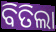
ବିତିଲା